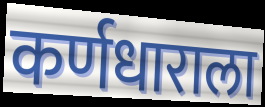
कर्णधाराला